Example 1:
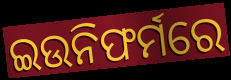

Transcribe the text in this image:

ଇଉନିଫର୍ମରେ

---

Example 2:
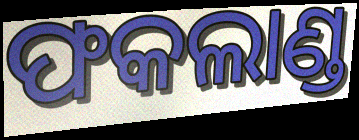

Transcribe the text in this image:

ଫକଲାଣ୍ଡ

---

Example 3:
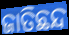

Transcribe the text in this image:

ଜାତିଛନ୍ଦ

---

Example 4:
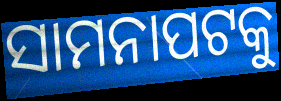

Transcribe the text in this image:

ସାମନାପଟକୁ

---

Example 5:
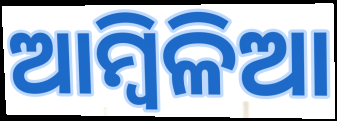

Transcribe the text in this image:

ଆମ୍ୱିଳିଆ